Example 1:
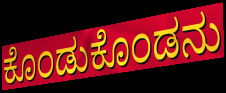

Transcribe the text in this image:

ಕೊಂಡುಕೊಂಡನು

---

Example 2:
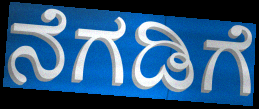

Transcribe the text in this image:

ನೆಗಡಿಗೆ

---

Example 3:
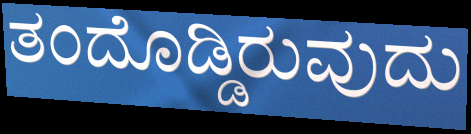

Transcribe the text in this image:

ತಂದೊಡ್ಡಿರುವುದು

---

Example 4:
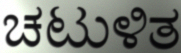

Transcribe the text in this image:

ಚಟುಳಿತ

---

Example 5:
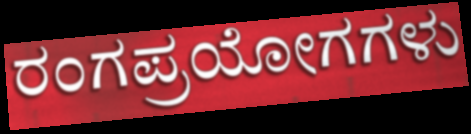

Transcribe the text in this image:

ರಂಗಪ್ರಯೋಗಗಳು